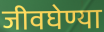
जीवघेण्या